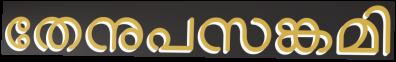
തേനുപസങ്കമി